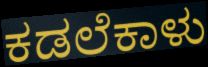
ಕಡಲೆಕಾಳು